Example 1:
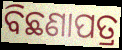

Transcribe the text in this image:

ବିଛଣାପତ୍ର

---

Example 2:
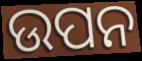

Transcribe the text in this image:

ଉପନ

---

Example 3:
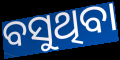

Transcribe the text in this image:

ବସୁଥିବା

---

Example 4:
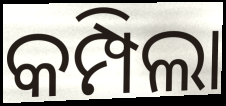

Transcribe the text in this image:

କମ୍ପିଲା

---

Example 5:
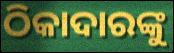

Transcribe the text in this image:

ଠିକାଦାରଙ୍କୁ